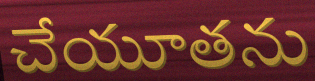
చేయూతను